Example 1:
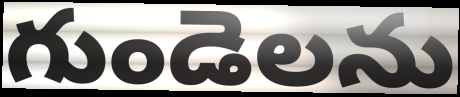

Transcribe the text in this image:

గుండెలను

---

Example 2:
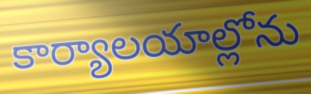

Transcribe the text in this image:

కార్యాలయాల్లోను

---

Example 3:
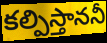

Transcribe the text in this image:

కల్పిస్తాననీ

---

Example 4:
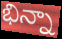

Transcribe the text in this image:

భిన్నా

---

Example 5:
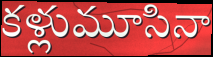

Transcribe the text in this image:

కళ్లుమూసినా